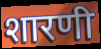
शारणी